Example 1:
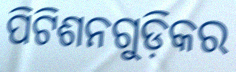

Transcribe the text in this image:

ପିଟିଶନଗୁଡ଼ିକର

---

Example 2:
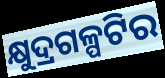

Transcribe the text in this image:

କ୍ଷୁଦ୍ରଗଳ୍ପଟିର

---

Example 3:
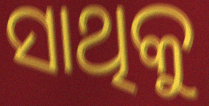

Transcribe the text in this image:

ସାଥିକୁ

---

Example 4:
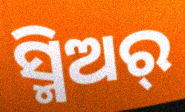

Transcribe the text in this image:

ସ୍ମିଅର୍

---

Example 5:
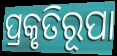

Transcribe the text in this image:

ପ୍ରକୃତିରୂପା